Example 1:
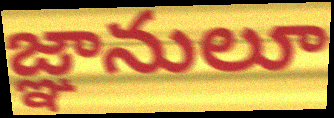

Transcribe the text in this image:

జ్ఞానులూ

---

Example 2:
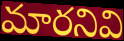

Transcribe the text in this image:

మారనివి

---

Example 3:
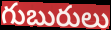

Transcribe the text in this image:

గుబురులు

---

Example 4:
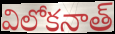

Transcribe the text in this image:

విలోకనాత్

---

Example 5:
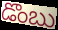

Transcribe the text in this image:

డొంబు